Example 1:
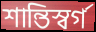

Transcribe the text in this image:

শান্তিস্বর্গ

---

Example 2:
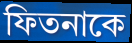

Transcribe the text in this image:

ফিতনাকে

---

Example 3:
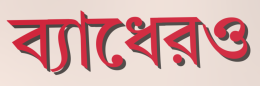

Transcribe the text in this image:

ব্যাধেরও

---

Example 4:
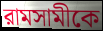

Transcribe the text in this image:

রামসামীকে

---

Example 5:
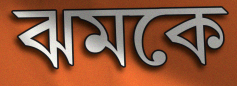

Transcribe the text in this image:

ঝমকে